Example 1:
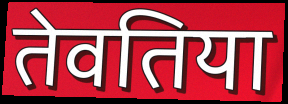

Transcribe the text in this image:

तेवतिया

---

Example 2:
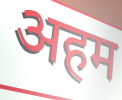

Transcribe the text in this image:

अहम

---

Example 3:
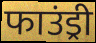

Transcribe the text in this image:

फाउंड्री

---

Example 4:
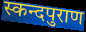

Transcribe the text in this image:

स्कन्दपुराण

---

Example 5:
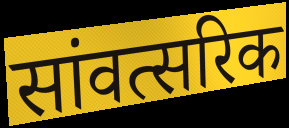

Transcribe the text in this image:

सांवत्सरिक